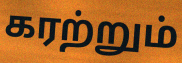
கரற்றும்